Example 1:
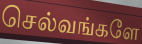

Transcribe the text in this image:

செல்வங்களே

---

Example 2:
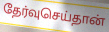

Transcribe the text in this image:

தேர்வுசெய்தான்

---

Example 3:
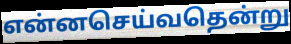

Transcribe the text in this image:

என்னசெய்வதென்று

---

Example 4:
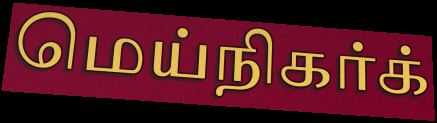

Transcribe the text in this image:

மெய்நிகர்க்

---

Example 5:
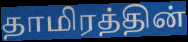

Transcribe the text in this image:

தாமிரத்தின்